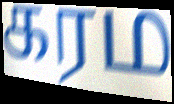
கரம